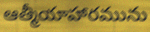
ఆత్మీయాహారమును